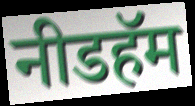
नीडहॅम